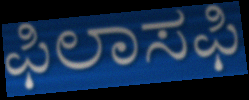
ಫಿಲಾಸಫಿ